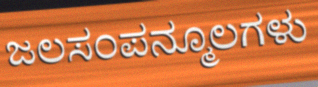
ಜಲಸಂಪನ್ಮೂಲಗಳು